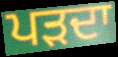
ਪੜਦਾ